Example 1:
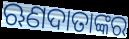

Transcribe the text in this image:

ଋଣଦାତାଙ୍କର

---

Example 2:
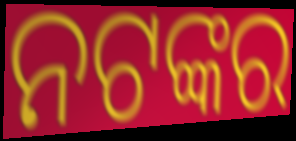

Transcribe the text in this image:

ନଟଙ୍କର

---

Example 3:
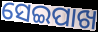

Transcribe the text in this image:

ସେଇପାଖ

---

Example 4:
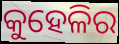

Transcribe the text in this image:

କୁହେଳିର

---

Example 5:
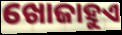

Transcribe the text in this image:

ଖୋଜାହୁଏ